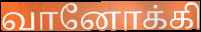
வானோக்கி